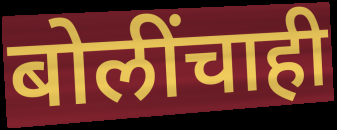
बोलींचाही